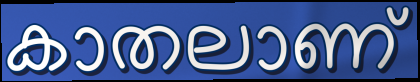
കാതലാണ്